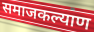
समाजकल्याण